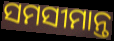
ସମସୀମାନ୍ତ